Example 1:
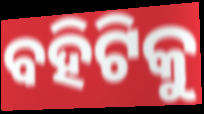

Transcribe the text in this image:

ବହିଟିକୁ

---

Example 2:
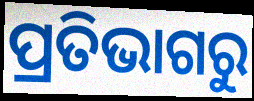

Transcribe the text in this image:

ପ୍ରତିଭାଗରୁ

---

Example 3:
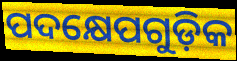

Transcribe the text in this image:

ପଦକ୍ଷେପଗୁଡ଼ିକ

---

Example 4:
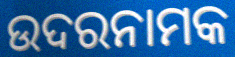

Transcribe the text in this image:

ଉଦରନାମକ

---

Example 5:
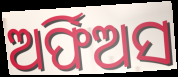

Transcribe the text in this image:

ଅର୍ଫିଅସ